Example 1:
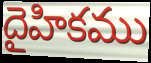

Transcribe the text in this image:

దైహికము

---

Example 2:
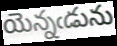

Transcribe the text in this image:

యెన్నఁడును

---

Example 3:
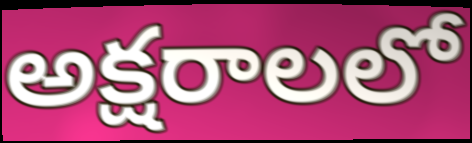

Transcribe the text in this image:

అక్షరాలలో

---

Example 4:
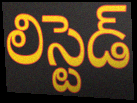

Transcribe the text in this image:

లిస్టెడ్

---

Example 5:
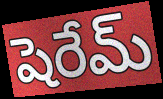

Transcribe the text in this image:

షెరేమ్